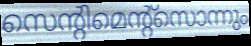
സെന്റിമെന്റ്സൊന്നും